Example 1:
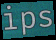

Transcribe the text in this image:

ips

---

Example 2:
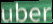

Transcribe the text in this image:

uber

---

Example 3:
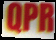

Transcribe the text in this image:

QPR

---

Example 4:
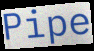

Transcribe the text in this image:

Pipe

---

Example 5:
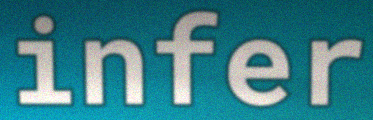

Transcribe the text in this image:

infer